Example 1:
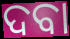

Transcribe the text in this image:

ଦବା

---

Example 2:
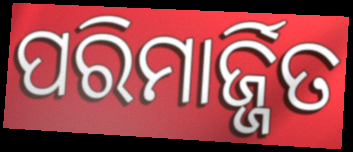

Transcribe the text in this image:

ପରିମାର୍ଜ୍ଜିତ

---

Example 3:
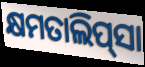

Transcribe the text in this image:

କ୍ଷମତାଲିପ୍‍ସା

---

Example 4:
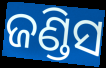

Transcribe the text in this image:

ଜଣ୍ଡିସ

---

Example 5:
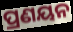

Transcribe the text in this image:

ପ୍ରଣୟନ